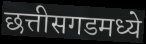
छत्तीसगडमध्ये